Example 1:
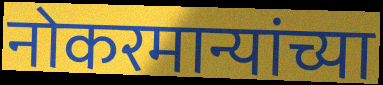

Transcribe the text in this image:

नोकरमान्यांच्या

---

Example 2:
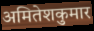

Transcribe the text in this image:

अमितेशकुमार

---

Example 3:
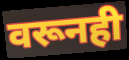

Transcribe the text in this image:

वरूनही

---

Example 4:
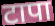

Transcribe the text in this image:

टापा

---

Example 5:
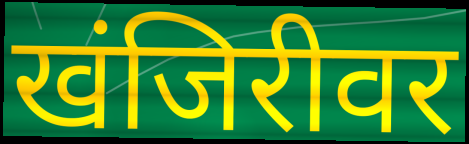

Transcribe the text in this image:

खंजिरीवर